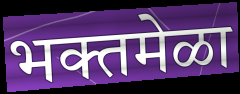
भक्तमेळा